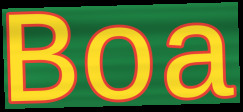
Boa